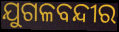
ଯୁଗଳବନ୍ଦୀର